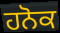
ਹਨੋਕ